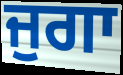
ਜੁਗਾ